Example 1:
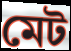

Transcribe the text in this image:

মেট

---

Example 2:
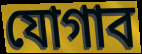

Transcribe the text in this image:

যোগাব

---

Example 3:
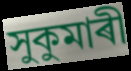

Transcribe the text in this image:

সুকুমাৰী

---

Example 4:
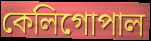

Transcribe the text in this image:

কেলিগোপাল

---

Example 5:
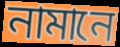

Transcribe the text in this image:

নামানে